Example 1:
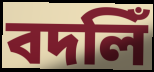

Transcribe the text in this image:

বদলিঁ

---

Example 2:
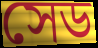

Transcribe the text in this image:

সেড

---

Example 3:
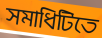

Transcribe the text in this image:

সমাধিটিতে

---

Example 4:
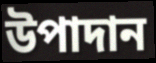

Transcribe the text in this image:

উপাদান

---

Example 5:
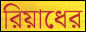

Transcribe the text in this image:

রিয়াধের